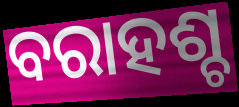
ବରାହଶ୍ଚ